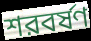
শরবর্ষণ